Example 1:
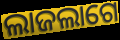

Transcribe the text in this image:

ଲାଜଲାଗେ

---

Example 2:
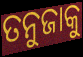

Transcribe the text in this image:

ତନୁଜାକୁ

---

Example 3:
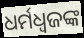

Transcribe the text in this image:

ଧର୍ମଧ୍ୱଜଙ୍କ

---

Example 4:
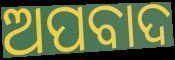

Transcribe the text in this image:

ଅପବାଦ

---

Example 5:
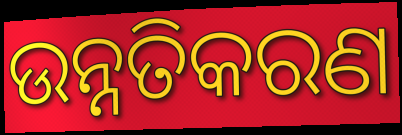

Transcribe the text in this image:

ଉନ୍ନତିକରଣ